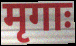
मृगाः